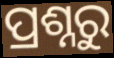
ପ୍ରଶ୍ନରୁ